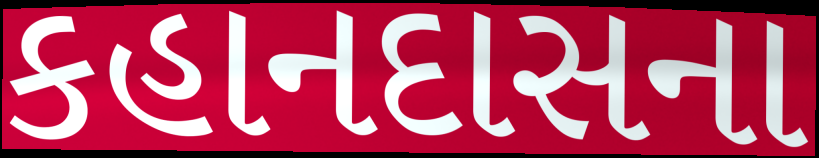
કહાનદાસના